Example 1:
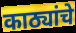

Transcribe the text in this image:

काठ्यांचे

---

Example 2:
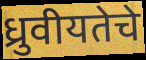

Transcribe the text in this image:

ध्रुवीयतेचे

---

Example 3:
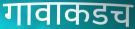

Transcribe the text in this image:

गावाकडच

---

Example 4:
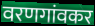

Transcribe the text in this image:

वरणगांवकर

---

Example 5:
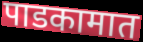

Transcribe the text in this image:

पाडकामात